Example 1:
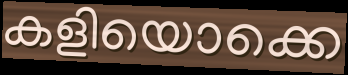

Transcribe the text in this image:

കളിയൊക്കെ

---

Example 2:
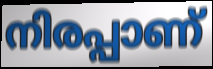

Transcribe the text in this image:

നിരപ്പാണ്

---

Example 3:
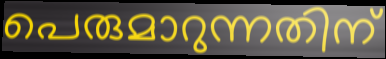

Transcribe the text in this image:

പെരുമാറുന്നതിന്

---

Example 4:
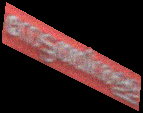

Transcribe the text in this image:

നേട്ടത്തിനുള്ള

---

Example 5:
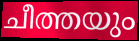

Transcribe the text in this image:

ചീത്തയും